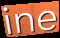
ine